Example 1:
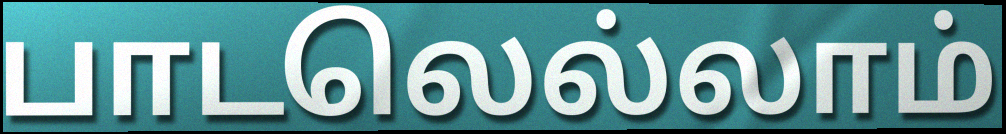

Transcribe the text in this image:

பாடலெல்லாம்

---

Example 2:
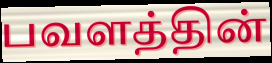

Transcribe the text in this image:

பவளத்தின்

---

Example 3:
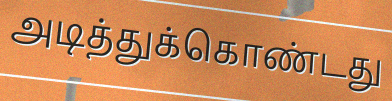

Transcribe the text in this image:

அடித்துக்கொண்டது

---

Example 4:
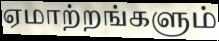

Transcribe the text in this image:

ஏமாற்றங்களும்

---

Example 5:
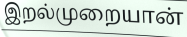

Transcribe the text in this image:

இறல்முறையான்